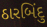
ઠારબિંદુ